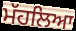
ਮੱਹਲਿਆ